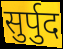
सुर्पुद